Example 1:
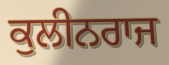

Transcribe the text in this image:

ਕੁਲੀਨਰਾਜ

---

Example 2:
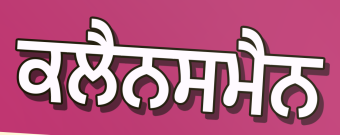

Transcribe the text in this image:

ਕਲੈਨਸਮੈਨ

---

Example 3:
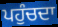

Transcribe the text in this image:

ਪਹੁੰਚਦਾ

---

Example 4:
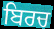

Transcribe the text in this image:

ਬਿਰਚ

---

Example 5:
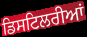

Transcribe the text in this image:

ਡਿਸਟਿਲਰੀਆਂ